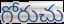
గోరుచు